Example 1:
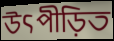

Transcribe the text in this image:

উৎপীড়িত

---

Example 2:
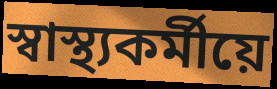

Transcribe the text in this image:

স্বাস্থ্যকৰ্মীয়ে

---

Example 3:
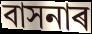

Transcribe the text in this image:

বাসনাৰ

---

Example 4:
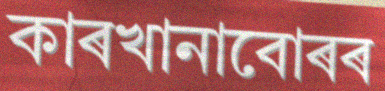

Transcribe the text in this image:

কাৰখানাবোৰৰ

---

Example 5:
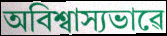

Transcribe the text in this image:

অবিশ্বাস্যভাৱে